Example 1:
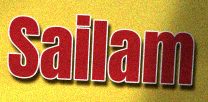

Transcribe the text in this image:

Sailam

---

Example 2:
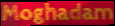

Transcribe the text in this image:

Moghadam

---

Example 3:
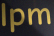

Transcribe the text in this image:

lpm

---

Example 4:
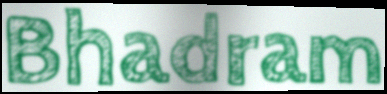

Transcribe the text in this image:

Bhadram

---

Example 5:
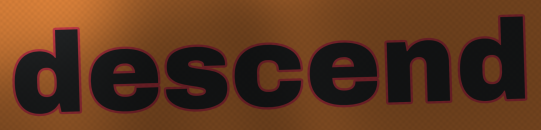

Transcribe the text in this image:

descend